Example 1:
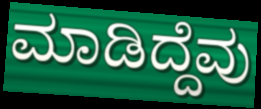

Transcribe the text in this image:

ಮಾಡಿದ್ದೆವು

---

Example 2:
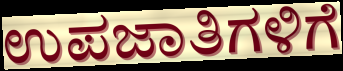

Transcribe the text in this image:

ಉಪಜಾತಿಗಳಿಗೆ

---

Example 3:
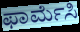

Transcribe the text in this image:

ಫಾರ್ಮೆಸಿ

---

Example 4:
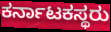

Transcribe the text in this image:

ಕರ್ನಾಟಕಸ್ಥರು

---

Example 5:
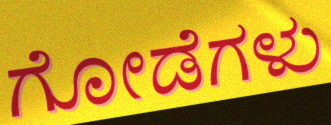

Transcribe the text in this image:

ಗೋಡೆಗಳು